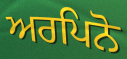
ਅਰਪਿਨੋ